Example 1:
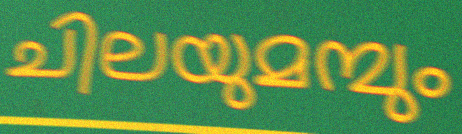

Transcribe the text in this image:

ചിലയുമമ്പും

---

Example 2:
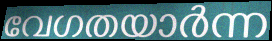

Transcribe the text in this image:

വേഗതയാർന്ന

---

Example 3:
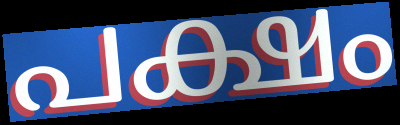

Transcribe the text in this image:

പക്ഷം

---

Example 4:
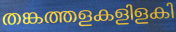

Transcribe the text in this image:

തങ്കത്തളകളിളകി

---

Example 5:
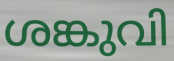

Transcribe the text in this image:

ശങ്കുവി